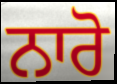
ਨਾਰੋ